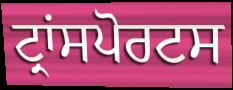
ਟ੍ਰਾਂਸਪੋਰਟਸ